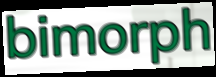
bimorph